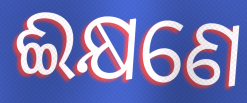
ଈକ୍ଷଣେ